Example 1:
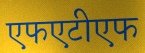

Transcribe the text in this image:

एफएटीएफ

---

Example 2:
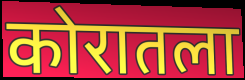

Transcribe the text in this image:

कोरातला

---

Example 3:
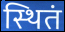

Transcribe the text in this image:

स्थितं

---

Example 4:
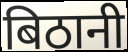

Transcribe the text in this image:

बिठानी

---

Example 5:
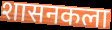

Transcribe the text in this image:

शासनकला